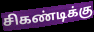
சிகண்டிக்கு